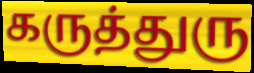
கருத்துரு